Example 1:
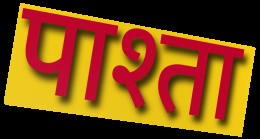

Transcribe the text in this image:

पाश्ता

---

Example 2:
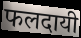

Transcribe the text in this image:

फलदायी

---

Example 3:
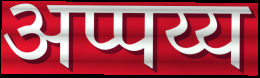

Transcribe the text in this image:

अप्पय्य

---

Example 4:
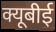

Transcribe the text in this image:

क्यूबीई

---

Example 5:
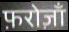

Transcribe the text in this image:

फ़रोज़ाँ